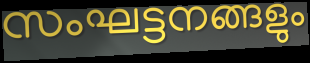
സംഘട്ടനങ്ങളും